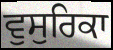
ਵੁਸੁਰਿਕਾ